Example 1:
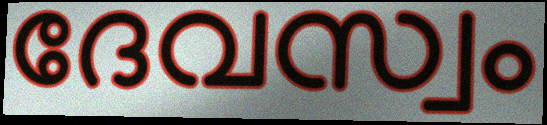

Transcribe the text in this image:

ദേവസ്വം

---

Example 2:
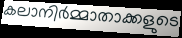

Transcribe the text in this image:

കലാനിർമ്മാതാക്കളുടെ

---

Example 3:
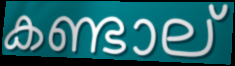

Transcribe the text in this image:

കണ്ടാല്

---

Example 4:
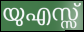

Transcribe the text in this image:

യുഎസ്സ്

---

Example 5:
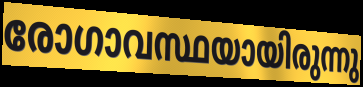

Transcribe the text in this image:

രോഗാവസ്ഥയായിരുന്നു